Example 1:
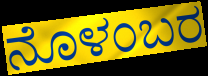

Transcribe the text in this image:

ನೊಳಂಬರ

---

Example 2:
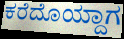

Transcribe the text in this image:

ಕರೆದೊಯ್ದಾಗ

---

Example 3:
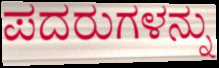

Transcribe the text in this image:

ಪದರುಗಳನ್ನು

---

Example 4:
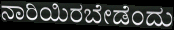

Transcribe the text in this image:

ನಾರಿಯಿರಬೇಡೆಂದು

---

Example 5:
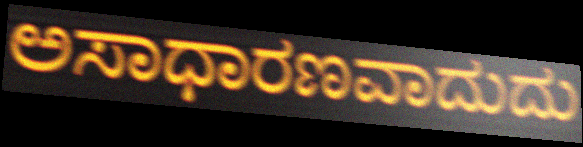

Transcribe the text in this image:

ಅಸಾಧಾರಣವಾದುದು